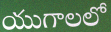
యుగాలలో